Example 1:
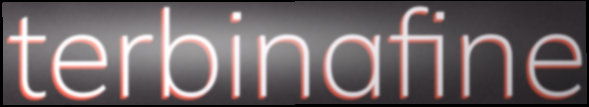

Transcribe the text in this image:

terbinafine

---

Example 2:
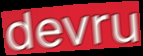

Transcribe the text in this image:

devru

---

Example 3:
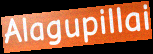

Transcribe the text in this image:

Alagupillai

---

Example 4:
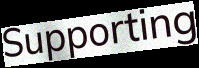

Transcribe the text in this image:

Supporting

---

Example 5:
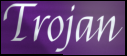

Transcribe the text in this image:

Trojan